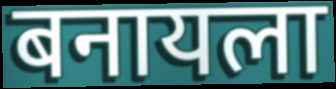
बनायला